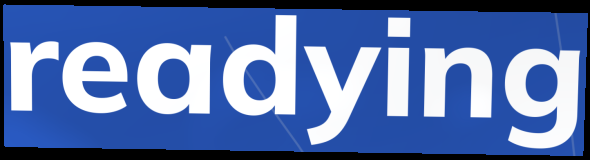
readying